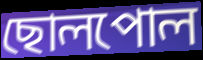
ছোলপোল